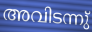
അവിടന്നു്